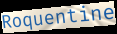
Roquentine